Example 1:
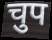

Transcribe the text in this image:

चुप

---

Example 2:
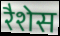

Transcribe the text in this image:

रैशेस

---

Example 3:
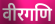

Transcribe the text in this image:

वीरगणि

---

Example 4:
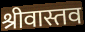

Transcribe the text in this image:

श्रीवास्तव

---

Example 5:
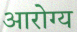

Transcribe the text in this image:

आरोग्य